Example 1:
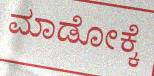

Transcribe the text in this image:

ಮಾಡೋಕ್ಕೆ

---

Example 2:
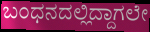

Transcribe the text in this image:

ಬಂಧನದಲ್ಲಿದ್ದಾಗಲೇ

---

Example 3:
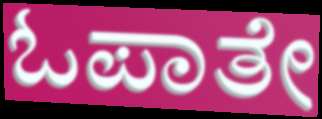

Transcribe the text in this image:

ಓಪಾತೇ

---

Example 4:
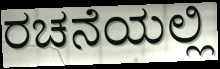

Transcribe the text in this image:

ರಚನೆಯಲ್ಲಿ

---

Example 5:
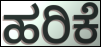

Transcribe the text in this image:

ಹರಿಕೆ